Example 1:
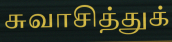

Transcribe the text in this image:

சுவாசித்துக்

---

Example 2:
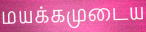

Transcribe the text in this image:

மயக்கமுடைய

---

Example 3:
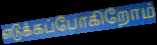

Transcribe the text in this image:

எடுக்கப்போகிறோம்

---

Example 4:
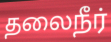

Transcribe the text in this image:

தலைநீர்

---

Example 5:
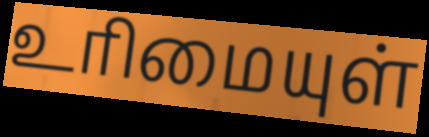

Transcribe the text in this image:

உரிமையுள்